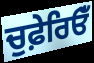
ਚੁਫ਼ੇਰਿਓਁ